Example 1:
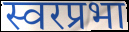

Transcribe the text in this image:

स्वरप्रभा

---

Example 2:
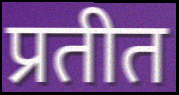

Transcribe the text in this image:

प्रतीत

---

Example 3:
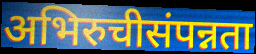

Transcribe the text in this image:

अभिरुचीसंपन्नता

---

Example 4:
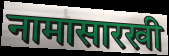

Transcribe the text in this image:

नामासारखी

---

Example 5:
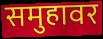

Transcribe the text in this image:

समुहावर